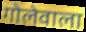
गोलेवाला